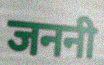
जननी